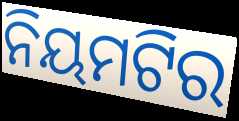
ନିୟମଟିର